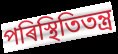
পৰিস্থিতিতন্ত্ৰ